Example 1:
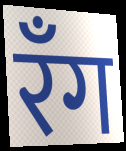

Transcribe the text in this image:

रॅंग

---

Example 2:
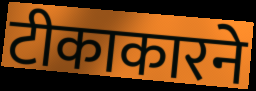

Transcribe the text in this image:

टीकाकारने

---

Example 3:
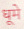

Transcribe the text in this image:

धूमे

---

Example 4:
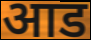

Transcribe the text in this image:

आड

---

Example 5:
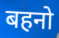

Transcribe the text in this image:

बहनो